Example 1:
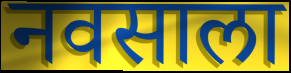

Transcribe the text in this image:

नवसाला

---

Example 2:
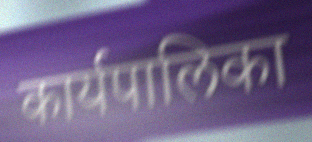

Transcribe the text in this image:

कार्यपालिका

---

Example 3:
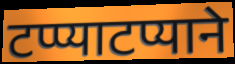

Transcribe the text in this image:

टप्प्याटप्याने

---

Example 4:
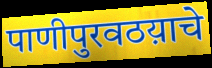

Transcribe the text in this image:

पाणीपुरवठय़ाचे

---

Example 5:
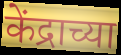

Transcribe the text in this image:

केंद्राच्या